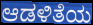
ಆಡಳಿತೆಯ